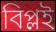
বিপ্লই